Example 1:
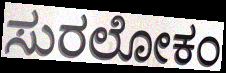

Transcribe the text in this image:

ಸುರಲೋಕಂ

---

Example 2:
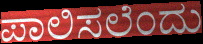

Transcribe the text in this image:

ಪಾಲಿಸಲೆಂದು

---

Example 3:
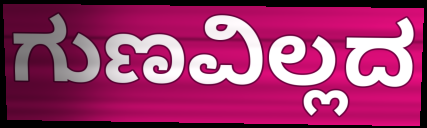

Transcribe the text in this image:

ಗುಣವಿಲ್ಲದ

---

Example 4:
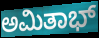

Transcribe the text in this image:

ಅಮಿತಾಭ್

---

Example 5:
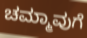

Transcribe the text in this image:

ಚಮ್ಮಾವುಗೆ